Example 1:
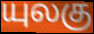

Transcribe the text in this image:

யுலகு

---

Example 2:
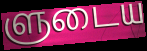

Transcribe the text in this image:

ளுடைய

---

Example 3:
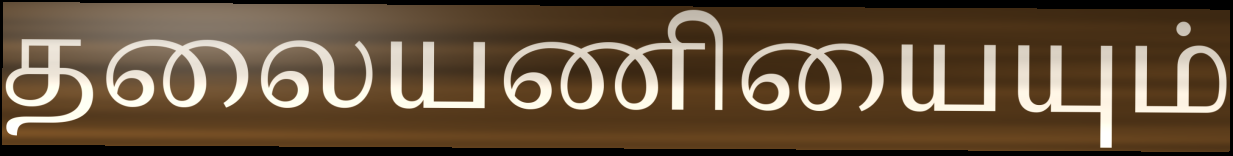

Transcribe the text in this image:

தலையணியையும்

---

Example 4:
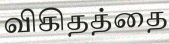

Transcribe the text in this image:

விகிதத்தை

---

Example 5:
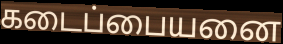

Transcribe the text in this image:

கடைப்பையனை